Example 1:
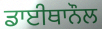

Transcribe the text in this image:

ਡਾਈਥਾਨੌਲ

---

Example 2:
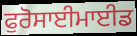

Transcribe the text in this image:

ਫੁਰੋਸਾਈਮਾਈਡ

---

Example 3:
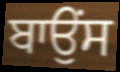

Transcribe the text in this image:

ਬਾਉਂਸ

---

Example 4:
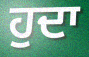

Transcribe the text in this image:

ਹੁਦਾ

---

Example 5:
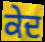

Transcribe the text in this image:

ਕੇਦ